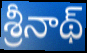
శ్రీనాథ్